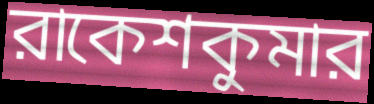
রাকেশকুমার